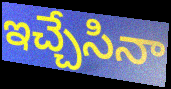
ఇచ్చేసినా